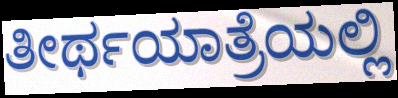
ತೀರ್ಥಯಾತ್ರೆಯಲ್ಲಿ